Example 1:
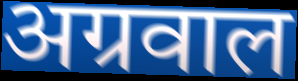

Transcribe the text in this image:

अग्रवाल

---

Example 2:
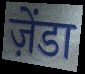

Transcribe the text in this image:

ज़ेंडा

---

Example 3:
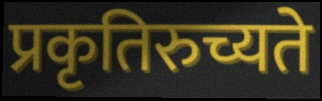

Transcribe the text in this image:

प्रकृतिरुच्यते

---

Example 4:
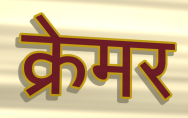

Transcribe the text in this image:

क्रेमर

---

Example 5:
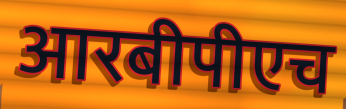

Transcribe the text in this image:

आरबीपीएच